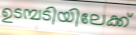
ഉടമ്പടിയിലേക്ക്